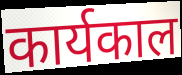
कार्यकाल